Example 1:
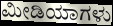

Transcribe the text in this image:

ಮೀಡಿಯಾಗಳು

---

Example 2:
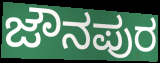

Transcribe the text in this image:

ಜೌನಪುರ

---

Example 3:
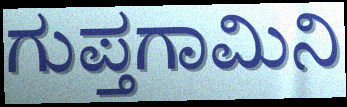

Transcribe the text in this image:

ಗುಪ್ತಗಾಮಿನಿ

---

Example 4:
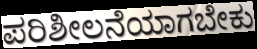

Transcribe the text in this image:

ಪರಿಶೀಲನೆಯಾಗಬೇಕು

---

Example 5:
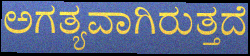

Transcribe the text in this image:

ಅಗತ್ಯವಾಗಿರುತ್ತದೆ